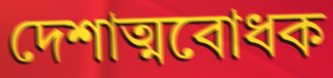
দেশাত্মবোধক